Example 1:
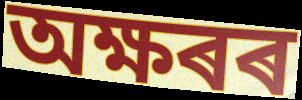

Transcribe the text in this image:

অক্ষৰৰ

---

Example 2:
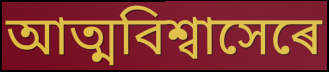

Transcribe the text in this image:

আত্মবিশ্বাসেৰে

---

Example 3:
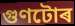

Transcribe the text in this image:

গুণটোৰ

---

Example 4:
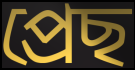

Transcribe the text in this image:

প্ৰেছ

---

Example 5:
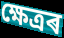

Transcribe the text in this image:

ক্ষেত্ৰৰ